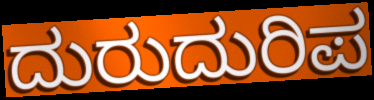
ದುರುದುರಿಪ